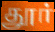
தூர்